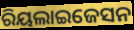
ରିୟଲାଇଜେସନ